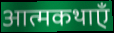
आत्मकथाएँ